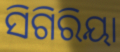
ସିଗିରିୟା